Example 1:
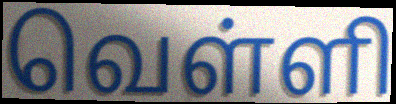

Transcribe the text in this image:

வெள்ளி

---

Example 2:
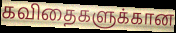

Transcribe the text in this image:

கவிதைகளுக்கான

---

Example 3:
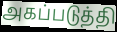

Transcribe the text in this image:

அகப்படுத்தி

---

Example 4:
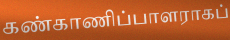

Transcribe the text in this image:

கண்காணிப்பாளராகப்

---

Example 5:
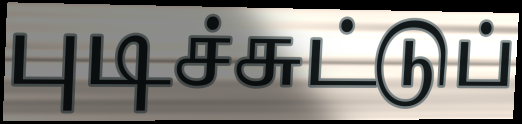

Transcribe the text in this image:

புடிச்சுட்டுப்